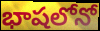
భాషలోనో